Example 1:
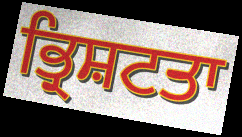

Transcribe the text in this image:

ਭ੍ਰਿਸ਼ਟਤਾ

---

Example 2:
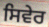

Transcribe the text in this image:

ਸਿਵੇਰ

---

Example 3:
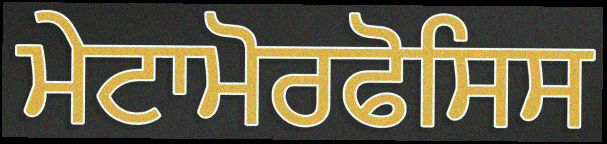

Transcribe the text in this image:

ਮੇਟਾਮੋਰਫੋਸਿਸ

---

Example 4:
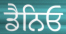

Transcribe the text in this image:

ਡੈਨਿਓ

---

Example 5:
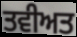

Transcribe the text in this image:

ਤਵੀਅਤ